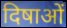
दिषाओं